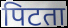
पिटता